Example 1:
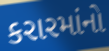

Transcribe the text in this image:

કરારમાંનો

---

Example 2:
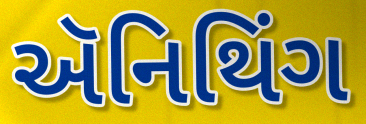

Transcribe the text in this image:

ઍનિથિંગ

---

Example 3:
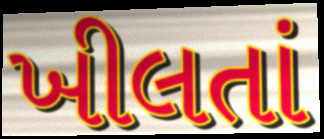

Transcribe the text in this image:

ખીલતાં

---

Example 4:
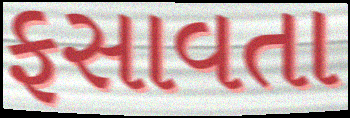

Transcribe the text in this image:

ફસાવતા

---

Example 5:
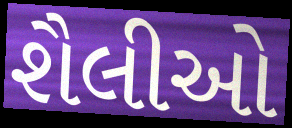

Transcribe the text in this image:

શૈલીઓ